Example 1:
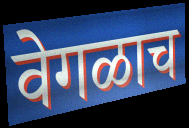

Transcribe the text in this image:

वेगळाच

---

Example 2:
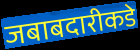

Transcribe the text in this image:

जबाबदारीकडे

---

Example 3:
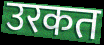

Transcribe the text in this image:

उरकत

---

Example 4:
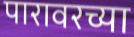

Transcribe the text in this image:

पारावरच्या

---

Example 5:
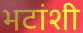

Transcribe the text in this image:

भटांशी